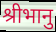
श्रीभानु